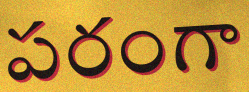
పరంగా